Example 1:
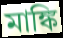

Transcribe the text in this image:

মাঙ্কি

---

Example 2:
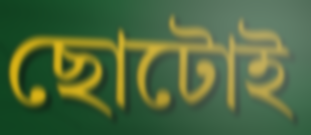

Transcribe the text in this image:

ছোটোই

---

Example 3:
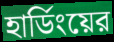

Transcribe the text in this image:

হার্ডিংয়ের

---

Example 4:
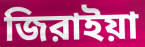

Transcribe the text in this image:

জিরাইয়া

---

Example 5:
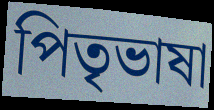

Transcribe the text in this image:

পিতৃভাষা